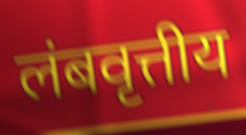
लंबवृत्तीय